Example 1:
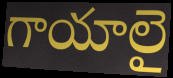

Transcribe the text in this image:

గాయాలై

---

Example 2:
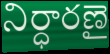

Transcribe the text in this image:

నిర్ధారణై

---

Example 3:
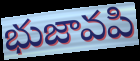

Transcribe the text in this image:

భుజావపి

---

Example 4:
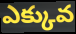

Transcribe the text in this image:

ఎక్కువ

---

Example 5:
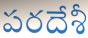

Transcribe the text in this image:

పరదేశీ